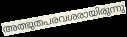
അത്ഭുതപരവശരായിരുന്നു